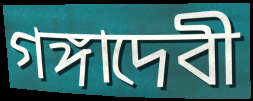
গঙ্গাদেবী